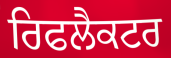
ਰਿਫਲੈਕਟਰ